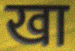
खा